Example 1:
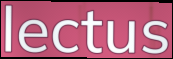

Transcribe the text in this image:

lectus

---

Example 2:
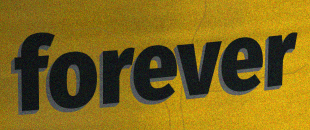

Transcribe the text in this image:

forever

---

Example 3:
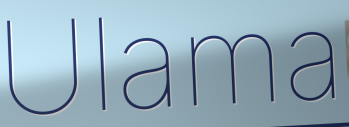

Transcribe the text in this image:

Ulama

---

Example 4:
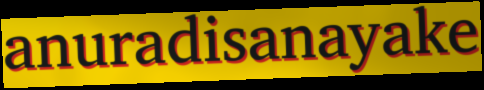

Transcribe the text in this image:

anuradisanayake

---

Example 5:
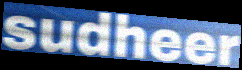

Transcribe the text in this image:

sudheer